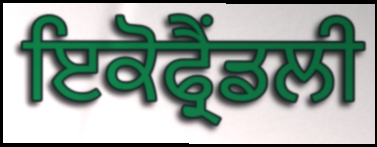
ਇਕੋਫ੍ਰੈਂਡਲੀ